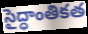
సైద్ధాంతికత